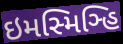
ઇમસ્મિઞ્હિ